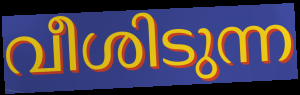
വീശിടുന്ന